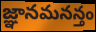
జ్ఞానమనన్తం